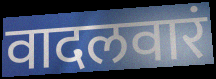
वादलवारं